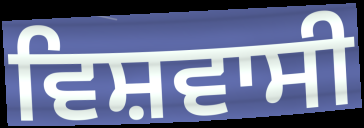
ਵਿਸ਼ਵਾਸੀ